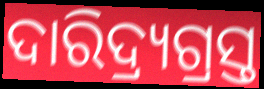
ଦାରିଦ୍ର୍ୟଗ୍ରସ୍ତ